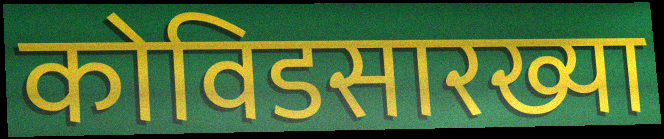
कोविडसारख्या